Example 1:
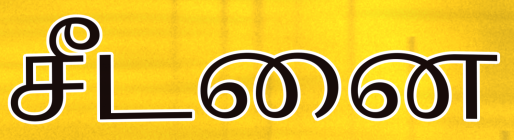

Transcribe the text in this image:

சீடனை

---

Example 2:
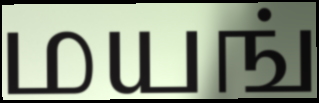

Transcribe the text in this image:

மயங்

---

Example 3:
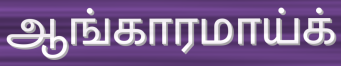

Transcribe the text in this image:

ஆங்காரமாய்க்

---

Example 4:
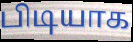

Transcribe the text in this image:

பிடியாக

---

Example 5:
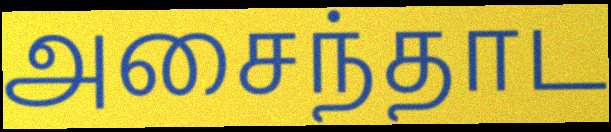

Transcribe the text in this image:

அசைந்தாட